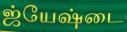
ஜ்யேஷ்டை